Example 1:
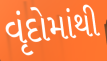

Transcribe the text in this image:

વૃંદોમાંથી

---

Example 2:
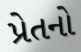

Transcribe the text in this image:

પ્રેતનો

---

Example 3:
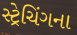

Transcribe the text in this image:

સ્ટ્રેચિંગના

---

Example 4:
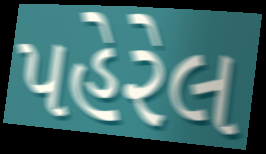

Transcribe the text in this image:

પહેરેલ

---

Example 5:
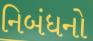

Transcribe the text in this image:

નિબંધનો